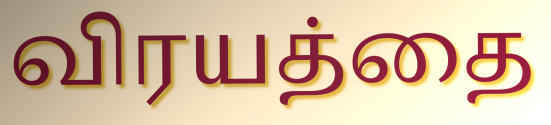
விரயத்தை